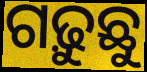
ଗଢ଼ୁଛୁ